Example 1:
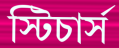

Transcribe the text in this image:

স্টিচার্স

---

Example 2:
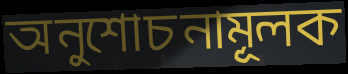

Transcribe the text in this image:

অনুশোচনামূলক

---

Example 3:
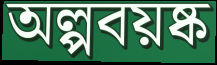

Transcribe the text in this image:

অল্পবয়ষ্ক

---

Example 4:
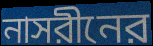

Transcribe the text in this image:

নাসরীনের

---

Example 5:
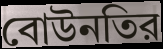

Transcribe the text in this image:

বোউনতির